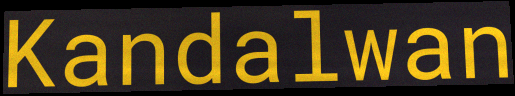
Kandalwan